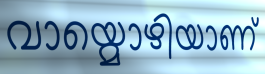
വായ്മൊഴിയാണ്